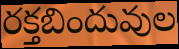
రక్తబిందువుల